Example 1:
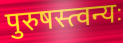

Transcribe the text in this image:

पुरुषस्त्वन्यः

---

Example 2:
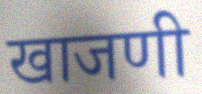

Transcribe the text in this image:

खाजणी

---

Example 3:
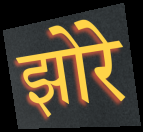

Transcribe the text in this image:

झोरे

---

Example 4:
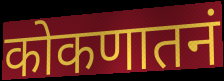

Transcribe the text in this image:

कोकणातनं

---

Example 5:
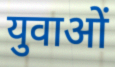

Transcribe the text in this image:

युवाओं